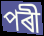
পৰী